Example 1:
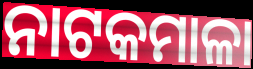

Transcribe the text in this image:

ନାଟକମାଳା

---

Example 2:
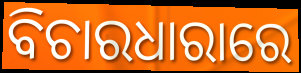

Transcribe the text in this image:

ବିଚାରଧାରାରେ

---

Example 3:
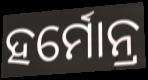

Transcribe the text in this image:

ହର୍ମୋନ୍ର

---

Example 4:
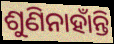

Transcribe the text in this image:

ଶୁଣିନାହାଁନ୍ତି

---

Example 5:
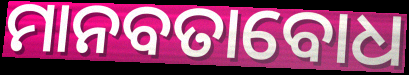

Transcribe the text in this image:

ମାନବତାବୋଧ